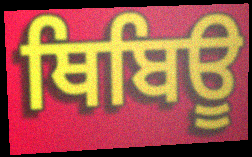
ਥਿਬਿਊ